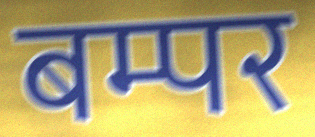
बम्पर